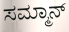
ಸಮ್ಮಾನ್